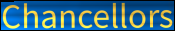
Chancellors